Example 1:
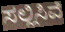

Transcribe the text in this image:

ಸಲ್ಲಿಸಿವೆ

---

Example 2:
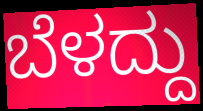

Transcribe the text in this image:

ಬೆಳದ್ದು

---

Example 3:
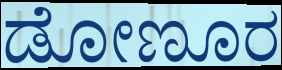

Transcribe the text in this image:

ಡೋಣೂರ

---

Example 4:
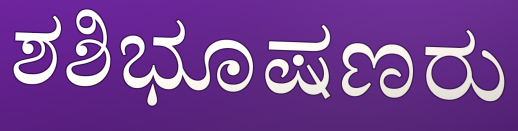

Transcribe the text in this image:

ಶಶಿಭೂಷಣರು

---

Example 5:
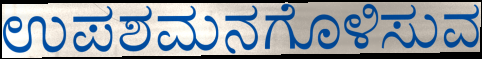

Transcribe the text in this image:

ಉಪಶಮನಗೊಳಿಸುವ